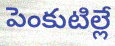
పెంకుటిల్లే